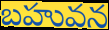
బహువన